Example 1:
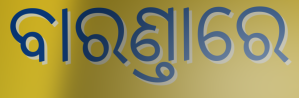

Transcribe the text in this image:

ବାରଣ୍ତାରେ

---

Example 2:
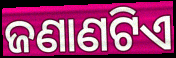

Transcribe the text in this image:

ଜଣାଣଟିଏ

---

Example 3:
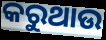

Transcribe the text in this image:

କରୁଥାଉ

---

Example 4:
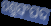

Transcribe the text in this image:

ପଶୁସଂପଦ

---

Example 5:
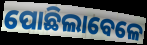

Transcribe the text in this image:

ପୋଛିଲାବେଳେ